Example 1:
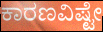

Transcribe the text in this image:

ಕಾರಣವಿಷ್ಟೇ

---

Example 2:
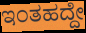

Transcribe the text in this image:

ಇಂತಹದ್ದೇ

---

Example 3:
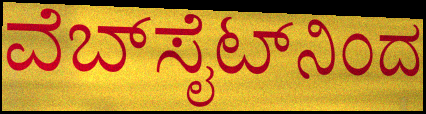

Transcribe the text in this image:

ವೆಬ್‍ಸೈಟ್‍ನಿಂದ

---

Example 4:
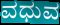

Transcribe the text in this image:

ವಧುವ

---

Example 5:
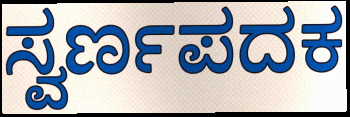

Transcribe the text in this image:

ಸ್ವರ್ಣಪದಕ